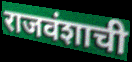
राजवंशाची